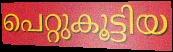
പെറ്റുകൂട്ടിയ